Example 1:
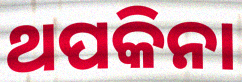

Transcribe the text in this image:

ଥପକିନା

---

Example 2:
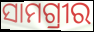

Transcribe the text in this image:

ସାମଗ୍ରୀର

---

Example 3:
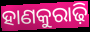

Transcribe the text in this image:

ହାଣକୁରାଢ଼ି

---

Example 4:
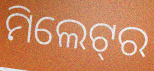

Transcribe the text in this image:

ମିଲେଟ୍‌ର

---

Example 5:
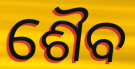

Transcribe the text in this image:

ଶୈବ